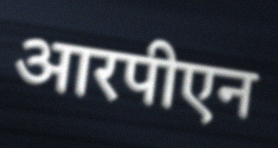
आरपीएन